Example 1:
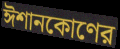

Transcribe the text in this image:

ঈশানকোণের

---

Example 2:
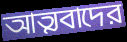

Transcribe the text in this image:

আত্মবাদের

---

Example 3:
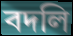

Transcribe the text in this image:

বদলি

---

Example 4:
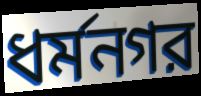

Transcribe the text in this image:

ধর্মনগর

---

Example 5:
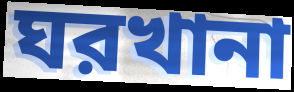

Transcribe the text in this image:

ঘরখানা